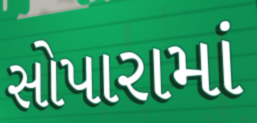
સોપારામાં